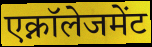
एक्नॉलेजमेंट